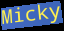
Micky